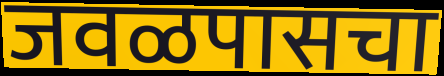
जवळपासचा